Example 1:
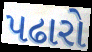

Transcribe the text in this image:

પઢારો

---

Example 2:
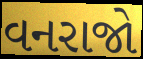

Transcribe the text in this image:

વનરાજો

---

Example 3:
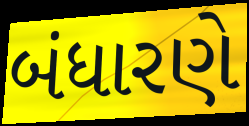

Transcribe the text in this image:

બંધારણે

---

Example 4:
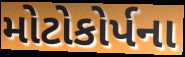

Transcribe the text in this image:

મોટોકોર્પના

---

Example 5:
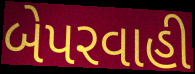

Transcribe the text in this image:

બેપરવાહી